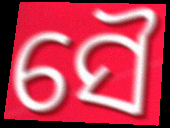
ସୈ